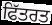
ਫਿੱਤਰਤ